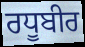
ਰਧੂਬੀਰ